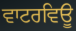
ਵਾਟਰਵਿਊ